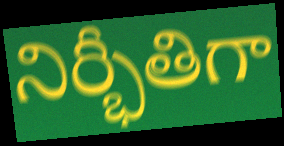
నిర్భీతిగా